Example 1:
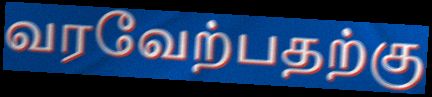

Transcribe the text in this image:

வரவேற்பதற்கு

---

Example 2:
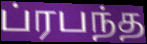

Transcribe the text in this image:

ப்ரபந்த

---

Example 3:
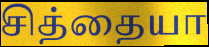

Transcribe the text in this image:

சித்தையா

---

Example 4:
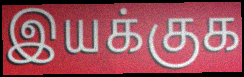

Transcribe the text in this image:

இயக்குக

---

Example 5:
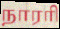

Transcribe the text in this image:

நாரரி